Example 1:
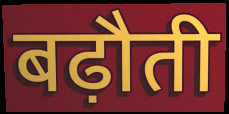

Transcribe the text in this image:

बढ़ौती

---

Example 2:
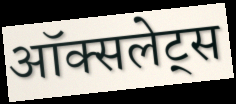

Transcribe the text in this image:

ऑक्सलेट्स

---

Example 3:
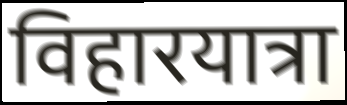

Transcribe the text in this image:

विहारयात्रा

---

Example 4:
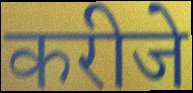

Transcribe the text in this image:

करीजे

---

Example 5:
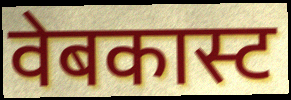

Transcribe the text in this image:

वेबकास्ट